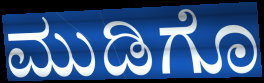
ಮುಡಿಗೊ